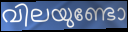
വിലയുണ്ടോ